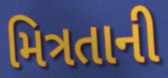
મિત્રતાની